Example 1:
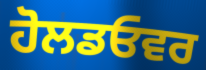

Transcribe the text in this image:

ਹੋਲਡਓਵਰ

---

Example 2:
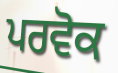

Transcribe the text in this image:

ਪਰਵੋਕ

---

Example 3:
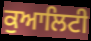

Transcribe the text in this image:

ਕੁਆਲਿਟੀ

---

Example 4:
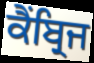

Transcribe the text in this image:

ਕੈਂਬ੍ਰਿਜ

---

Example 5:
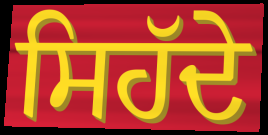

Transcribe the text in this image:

ਸਿਹੱਦੇ